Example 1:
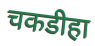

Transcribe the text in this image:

चकडीहा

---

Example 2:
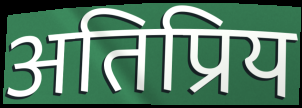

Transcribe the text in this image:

अतिप्रिय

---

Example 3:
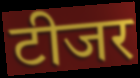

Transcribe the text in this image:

टीजर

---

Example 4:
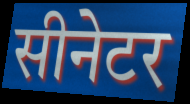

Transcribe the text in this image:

सीनेटर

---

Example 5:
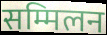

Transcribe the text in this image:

सम्मिलन